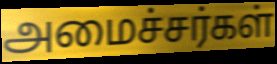
அமைச்சர்கள்